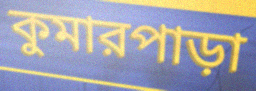
কুমারপাড়া